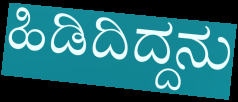
ಹಿಡಿದಿದ್ದನು